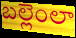
బల్లెంలా